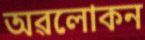
অৱলোকন